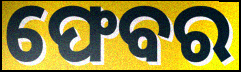
ଫେବର